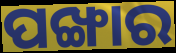
ପଙ୍ଖାର